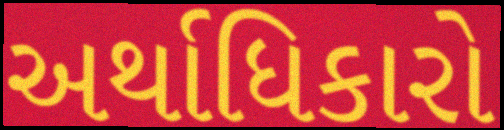
અર્થાધિકારો